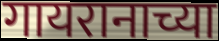
गायरानाच्या